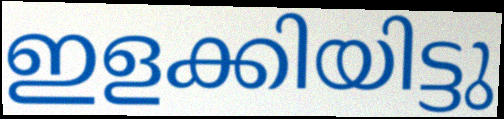
ഇളക്കിയിട്ടു